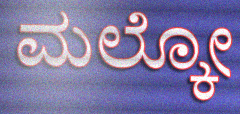
ಮಲ್ಕೋ